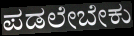
ಪಡಲೇಬೇಕು